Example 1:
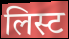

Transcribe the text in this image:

लिस्‍ट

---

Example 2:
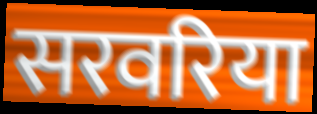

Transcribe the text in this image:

सरवरिया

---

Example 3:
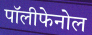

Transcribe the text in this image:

पॉलीफेनोल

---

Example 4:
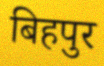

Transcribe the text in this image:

बिहपुर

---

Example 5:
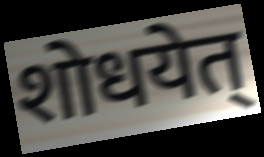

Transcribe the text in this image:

शोधयेत्